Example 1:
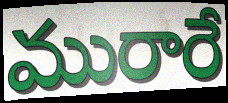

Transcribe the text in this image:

మురారే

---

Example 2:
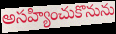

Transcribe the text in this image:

అసహ్యించుకొనును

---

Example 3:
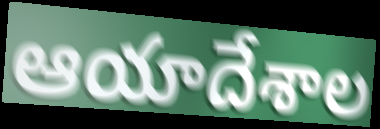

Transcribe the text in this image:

ఆయాదేశాల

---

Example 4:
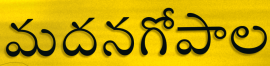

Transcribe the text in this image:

మదనగోపాల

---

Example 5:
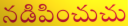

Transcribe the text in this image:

నడిపించుచు